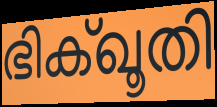
ഭിക്ഖൂതി